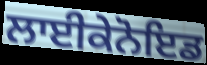
ਲਾਈਕੇਨੋਇਡ